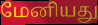
மேனியது